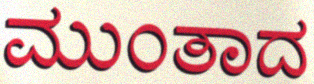
ಮುಂತಾದ